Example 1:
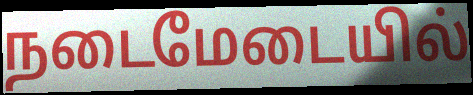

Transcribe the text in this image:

நடைமேடையில்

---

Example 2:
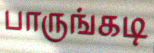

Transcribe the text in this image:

பாருங்கடி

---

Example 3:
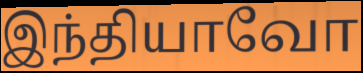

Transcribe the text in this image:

இந்தியாவோ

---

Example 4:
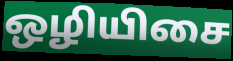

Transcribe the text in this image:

ஒழியிசை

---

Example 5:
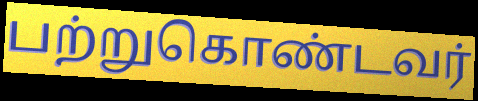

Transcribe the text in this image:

பற்றுகொண்டவர்